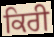
ਕਿਰੀ